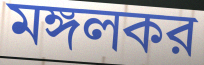
মঙ্গলকর